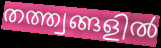
തത്ത്വങ്ങളിൽ